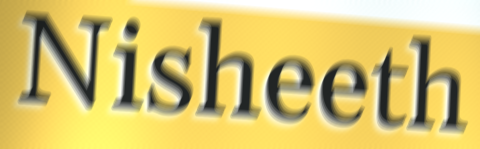
Nisheeth